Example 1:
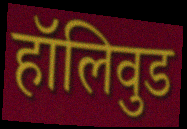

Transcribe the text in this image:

हॉलिवुड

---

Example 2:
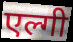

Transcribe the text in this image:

एल्गी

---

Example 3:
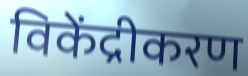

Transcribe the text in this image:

विकेंद्रीकरण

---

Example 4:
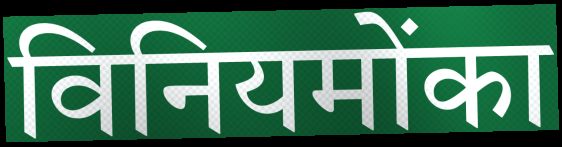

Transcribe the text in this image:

विनियमोंका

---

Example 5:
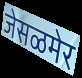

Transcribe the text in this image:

जेसळमेर